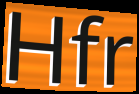
Hfr